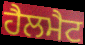
ਹੈਲਮੈਟ